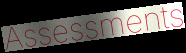
Assessments